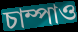
চাম্পাও